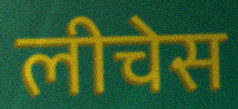
लीचेस